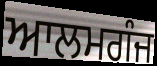
ਆਲਮਗੰਜ